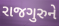
રાજગુરુને